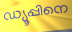
ഡ്യൂപ്പിനെ